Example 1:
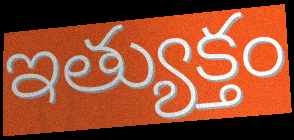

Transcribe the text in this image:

ఇత్యుక్తం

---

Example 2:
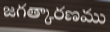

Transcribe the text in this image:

జగత్కారణము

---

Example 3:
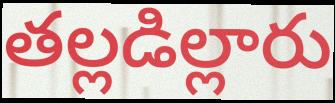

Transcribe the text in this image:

తల్లడిల్లారు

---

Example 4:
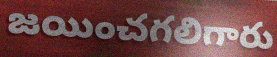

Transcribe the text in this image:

జయించగలిగారు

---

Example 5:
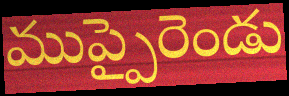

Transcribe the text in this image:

ముప్పైరెండు